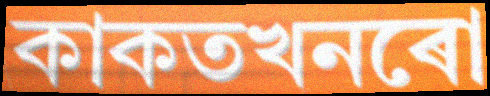
কাকতখনৰো